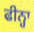
ਫੀਨ੍ਹਾ